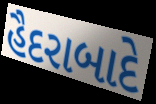
હૈદરાબાદે